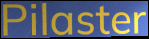
Pilaster